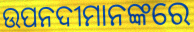
ଉପନଦୀମାନଙ୍କରେ